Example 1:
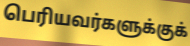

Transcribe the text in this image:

பெரியவர்களுக்குக்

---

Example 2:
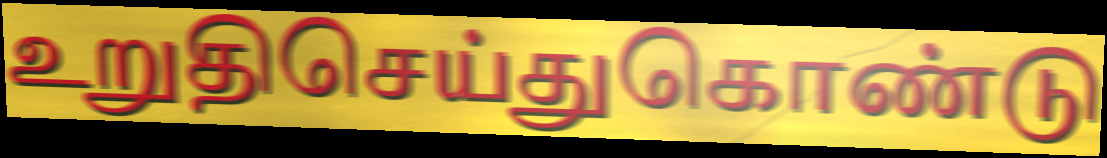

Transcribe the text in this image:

உறுதிசெய்துகொண்டு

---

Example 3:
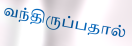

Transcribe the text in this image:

வந்திருப்பதால்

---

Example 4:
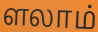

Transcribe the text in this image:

ளலாம்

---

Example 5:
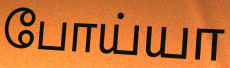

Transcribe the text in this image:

போய்யா